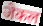
जेकल